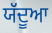
ਯੱਦੂਆ